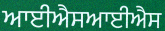
ਆਈਐਸਆਈਐਸ